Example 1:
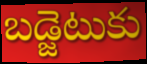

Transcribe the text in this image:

బడ్జెటుకు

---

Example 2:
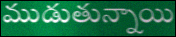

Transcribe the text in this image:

ముడుతున్నాయి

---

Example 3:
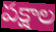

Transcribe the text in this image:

పక్షాల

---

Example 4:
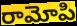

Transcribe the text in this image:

రామోపి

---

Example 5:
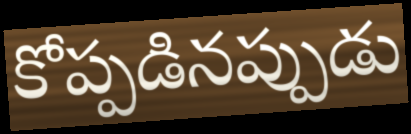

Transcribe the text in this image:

కోప్పడినప్పుడు